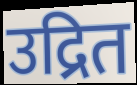
उद्रित